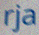
rja